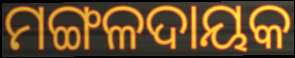
ମଙ୍ଗଳଦାୟକ